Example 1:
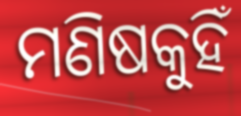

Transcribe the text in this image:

ମଣିଷକୁହିଁ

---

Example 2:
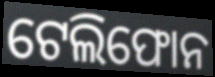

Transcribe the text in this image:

ଟେଲିଫୋନ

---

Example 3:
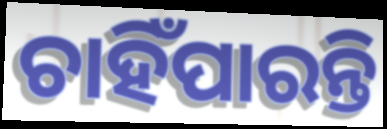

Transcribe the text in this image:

ଚାହିଁପାରନ୍ତି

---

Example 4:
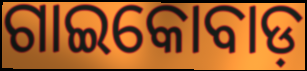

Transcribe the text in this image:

ଗାଇକୋବାଡ଼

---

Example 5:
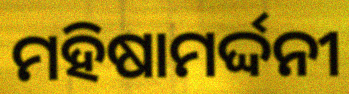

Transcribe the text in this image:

ମହିଷାମର୍ଦ୍ଦନୀ